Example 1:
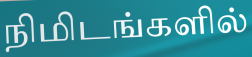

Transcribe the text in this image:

நிமிடங்களில்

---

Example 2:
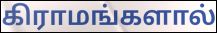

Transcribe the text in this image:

கிராமங்களால்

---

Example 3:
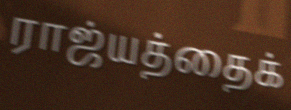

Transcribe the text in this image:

ராஜ்யத்தைக்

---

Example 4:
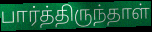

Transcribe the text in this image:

பார்த்திருந்தாள்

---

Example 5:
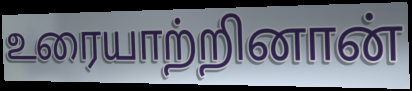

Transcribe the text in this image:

உரையாற்றினான்